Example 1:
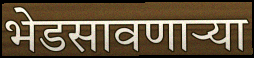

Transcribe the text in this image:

भेडसावणाऱ्या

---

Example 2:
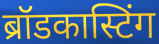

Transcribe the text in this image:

ब्रॉडकास्टिंग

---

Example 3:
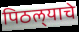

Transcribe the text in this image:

पिठल्याचे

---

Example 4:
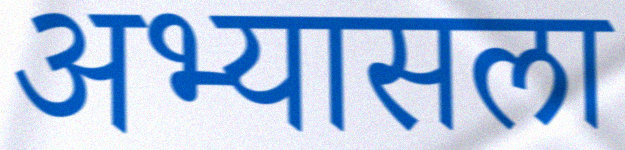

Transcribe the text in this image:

अभ्यासला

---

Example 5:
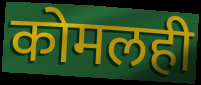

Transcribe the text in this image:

कोमलही